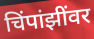
चिंपांझींवर